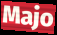
Majo